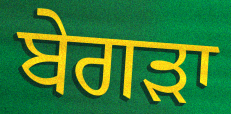
ਬੇਗੜਾ